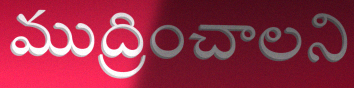
ముద్రించాలని